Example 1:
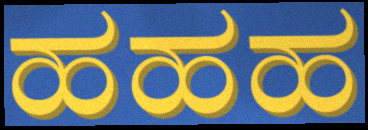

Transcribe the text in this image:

ಹಹಹ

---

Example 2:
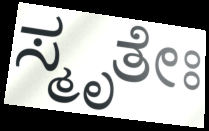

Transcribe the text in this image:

ಸ್ಮೃತೇಃ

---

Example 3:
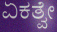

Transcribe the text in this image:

ಏಕತ್ವೇ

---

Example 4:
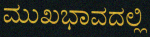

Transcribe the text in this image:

ಮುಖಭಾವದಲ್ಲಿ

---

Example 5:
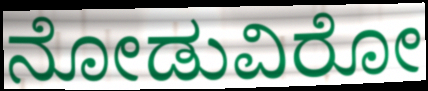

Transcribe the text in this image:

ನೋಡುವಿರೋ